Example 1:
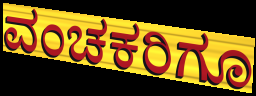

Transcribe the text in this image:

ವಂಚಕರಿಗೂ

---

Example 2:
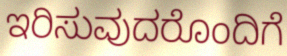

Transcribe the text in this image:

ಇರಿಸುವುದರೊಂದಿಗೆ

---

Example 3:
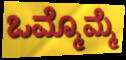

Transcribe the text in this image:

ಒಮ್ಮೊಮ್ಮೆ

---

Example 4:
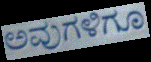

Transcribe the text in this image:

ಅವುಗಳಿಗೂ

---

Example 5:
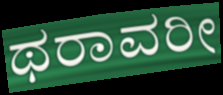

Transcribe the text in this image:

ಥರಾವರೀ